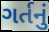
ગર્તનું